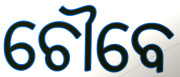
ଚୌବେ